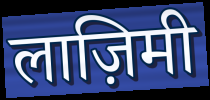
लाज़िमी